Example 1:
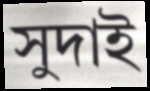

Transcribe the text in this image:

সুদাই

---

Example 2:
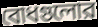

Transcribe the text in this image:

বোধগুলোর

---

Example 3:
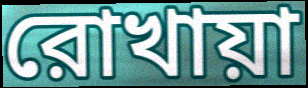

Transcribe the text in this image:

রোখায়া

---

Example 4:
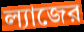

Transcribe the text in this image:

ল্যাজের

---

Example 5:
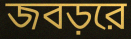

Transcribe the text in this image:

জবড়রে